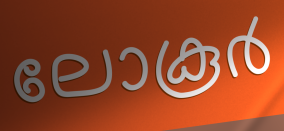
ലോകൂർ